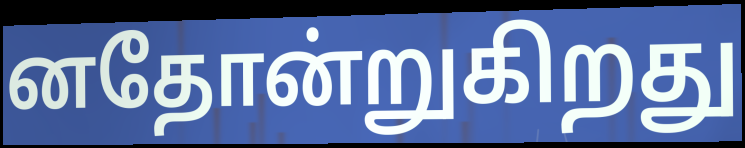
னதோன்றுகிறது